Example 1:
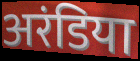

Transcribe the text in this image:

अरंडिया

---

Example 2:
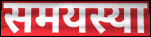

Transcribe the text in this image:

समयस्या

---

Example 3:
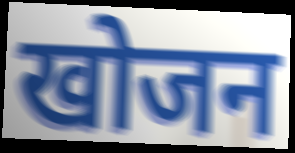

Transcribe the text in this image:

खोजन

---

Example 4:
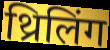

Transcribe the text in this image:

थ्रिलिंग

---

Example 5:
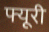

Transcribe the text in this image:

फ्यूरी